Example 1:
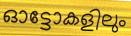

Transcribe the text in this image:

ഓട്ടോകളിലും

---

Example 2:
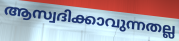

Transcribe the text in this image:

ആസ്വദിക്കാവുന്നതല്ല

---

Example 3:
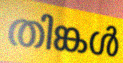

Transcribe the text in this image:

തിങ്കൾ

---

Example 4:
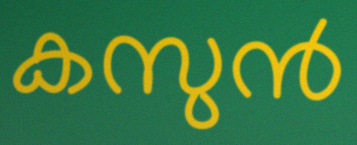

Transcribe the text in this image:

കസുൻ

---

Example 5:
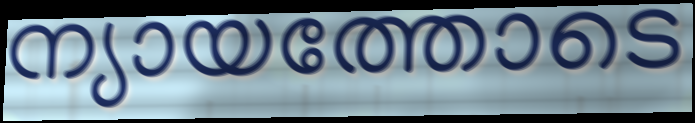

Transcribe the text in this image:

ന്യായത്തോടെ